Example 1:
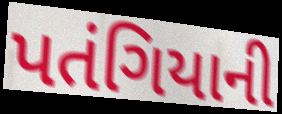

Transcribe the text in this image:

પતંગિયાની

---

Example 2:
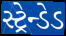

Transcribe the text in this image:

સ્ટ્રેન્ડેડ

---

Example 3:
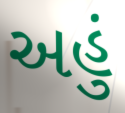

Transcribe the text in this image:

અહું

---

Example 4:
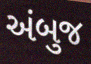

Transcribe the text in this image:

અંબુજ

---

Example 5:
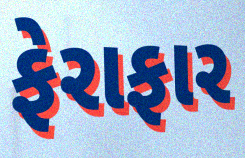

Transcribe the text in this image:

ફેરાફાર